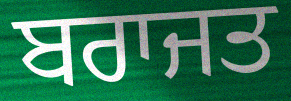
ਬਰਾਜਤ